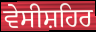
ਵੇਸੀਸ਼ਹਿਰ